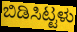
ಬಿಡಿಸಿಟ್ಟಳು